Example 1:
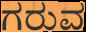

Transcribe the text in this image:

ಗರುವ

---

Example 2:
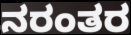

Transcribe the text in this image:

ನರಂತರ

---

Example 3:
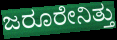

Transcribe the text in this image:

ಜರೂರೇನಿತ್ತು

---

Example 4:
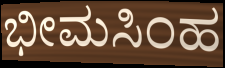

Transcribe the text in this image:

ಭೀಮಸಿಂಹ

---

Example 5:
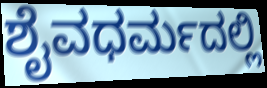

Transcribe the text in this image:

ಶೈವಧರ್ಮದಲ್ಲಿ